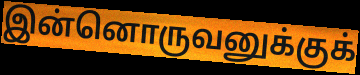
இன்னொருவனுக்குக்